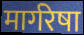
मार्गरेषा